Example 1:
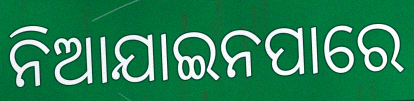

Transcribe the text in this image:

ନିଆଯାଇନପାରେ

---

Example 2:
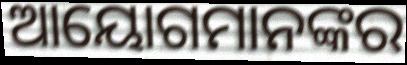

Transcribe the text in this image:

ଆୟୋଗମାନଙ୍କର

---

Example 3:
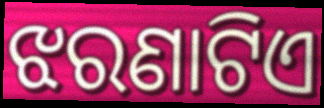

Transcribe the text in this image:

ଝରଣାଟିଏ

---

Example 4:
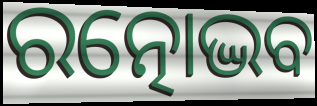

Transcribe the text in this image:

ରତ୍ନୋଦ୍ଭବ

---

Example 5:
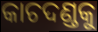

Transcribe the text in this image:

କାଚଦଣ୍ଡକୁ